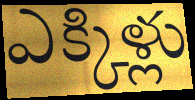
ఎక్కిళ్లు